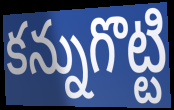
కన్నుగొట్టి